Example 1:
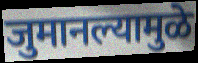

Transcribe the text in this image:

जुमानल्यामुळे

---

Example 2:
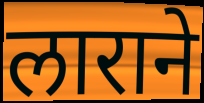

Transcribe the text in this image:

लाराने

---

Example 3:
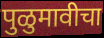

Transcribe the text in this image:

पुळुमावीचा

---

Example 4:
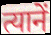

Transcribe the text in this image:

त्यानें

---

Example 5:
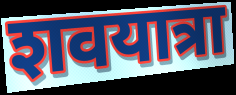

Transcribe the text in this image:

शवयात्रा